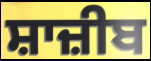
ਸ਼ਾਜ਼ੀਬ